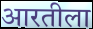
आरतीला